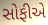
સોફીએ